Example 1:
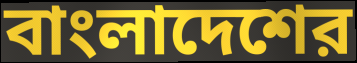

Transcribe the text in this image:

বাংলাদেশের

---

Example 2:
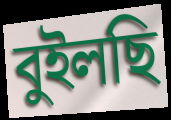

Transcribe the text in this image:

বুইলছি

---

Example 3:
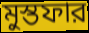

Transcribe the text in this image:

মুস্তফার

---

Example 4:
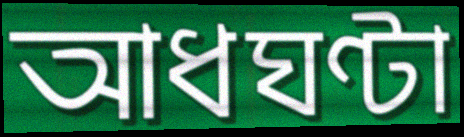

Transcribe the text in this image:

আধঘণ্টা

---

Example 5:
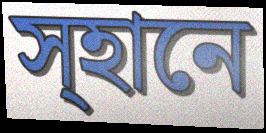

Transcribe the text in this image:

স্হানে